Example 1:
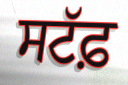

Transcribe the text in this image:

ਸਟੱਫ਼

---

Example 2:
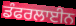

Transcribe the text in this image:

ਡੰਫਰਲਾਈਨ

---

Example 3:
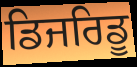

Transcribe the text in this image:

ਡਿਜਰਿਡੂ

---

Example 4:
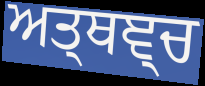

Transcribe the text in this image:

ਅਤ੍ਥਞ੍ਚ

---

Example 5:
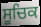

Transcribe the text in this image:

ਸੂਚਿਕ